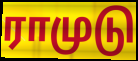
ராமுடு